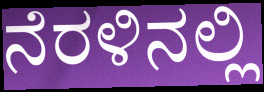
ನೆರಳಿನಲ್ಲಿ